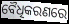
ବୈଧିକରଣରେ